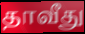
தாவீது